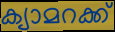
ക്യാമറക്ക്